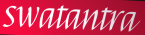
swatantra